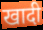
खादी